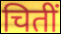
चितीं